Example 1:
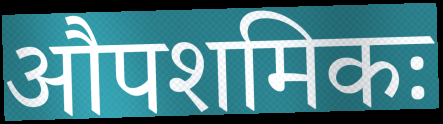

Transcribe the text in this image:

औपशमिकः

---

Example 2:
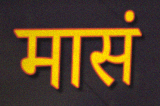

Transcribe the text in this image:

मासं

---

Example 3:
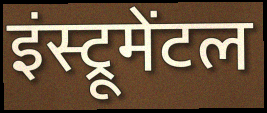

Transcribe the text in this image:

इंस्ट्रूमेंटल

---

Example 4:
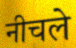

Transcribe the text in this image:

नीचले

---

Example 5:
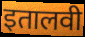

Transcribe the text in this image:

इतालवी